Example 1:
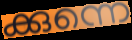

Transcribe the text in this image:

ക്കുന്നെ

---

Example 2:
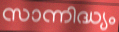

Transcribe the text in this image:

സാന്നിദ്ധ്യം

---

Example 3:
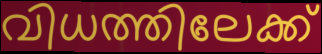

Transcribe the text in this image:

വിധത്തിലേക്ക്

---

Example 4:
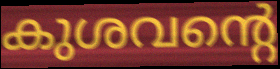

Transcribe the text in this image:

കുശവന്റെ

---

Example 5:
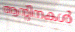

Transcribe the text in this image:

ആന്റിനകൾ